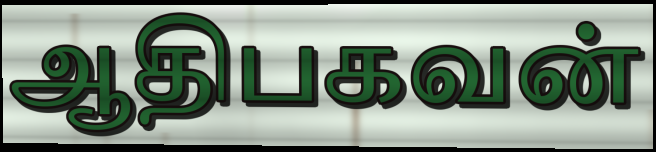
ஆதிபகவன்